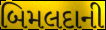
બિમલદાની